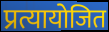
प्रत्यायोजित